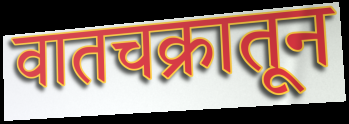
वातचक्रातून